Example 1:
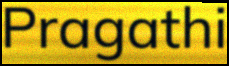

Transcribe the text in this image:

Pragathi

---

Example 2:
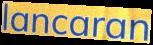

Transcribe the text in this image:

lancaran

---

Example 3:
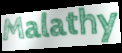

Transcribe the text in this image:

Malathy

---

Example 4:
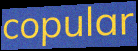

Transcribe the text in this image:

copular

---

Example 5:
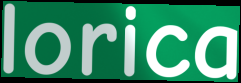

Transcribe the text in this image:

lorica